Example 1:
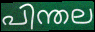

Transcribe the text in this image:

പിന്തല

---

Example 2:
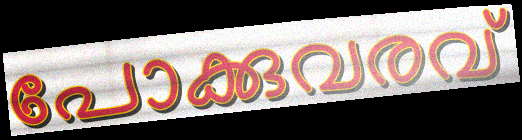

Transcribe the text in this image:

പോക്കുവരവ്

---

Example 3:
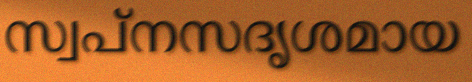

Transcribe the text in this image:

സ്വപ്നസദൃശമായ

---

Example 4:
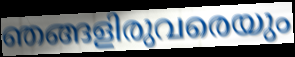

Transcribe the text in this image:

ഞങ്ങളിരുവരെയും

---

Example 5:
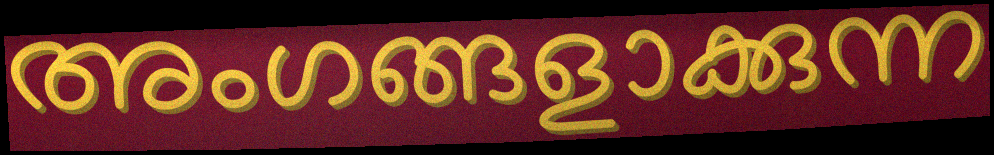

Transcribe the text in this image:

അംഗങ്ങളാക്കുന്ന